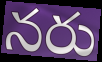
నరు